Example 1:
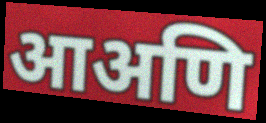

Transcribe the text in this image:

आअणि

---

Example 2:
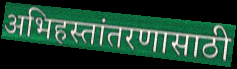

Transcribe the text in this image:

अभिहस्तांतरणासाठी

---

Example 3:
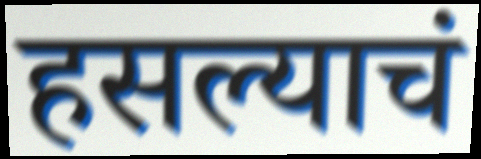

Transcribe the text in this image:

हसल्याचं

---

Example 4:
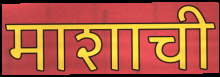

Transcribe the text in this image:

माशाची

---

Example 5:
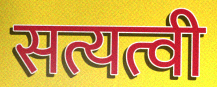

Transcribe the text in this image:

सत्यत्वी